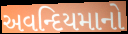
અવન્દિયમાનો